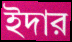
ইদার